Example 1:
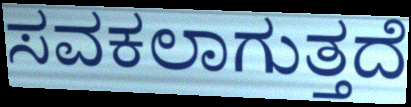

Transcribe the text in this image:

ಸವಕಲಾಗುತ್ತದೆ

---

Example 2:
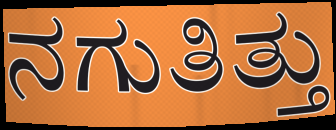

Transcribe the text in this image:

ನಗುತಿತ್ತು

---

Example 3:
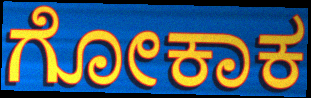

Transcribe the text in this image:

ಗೋಕಾಕ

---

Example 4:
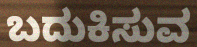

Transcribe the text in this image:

ಬದುಕಿಸುವ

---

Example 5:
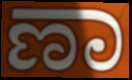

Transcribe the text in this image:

ಣಾ